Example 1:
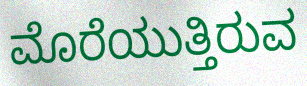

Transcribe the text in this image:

ಮೊರೆಯುತ್ತಿರುವ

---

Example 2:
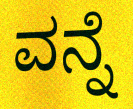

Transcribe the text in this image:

ವನ್ನೆ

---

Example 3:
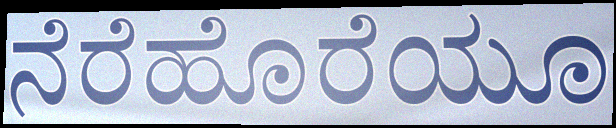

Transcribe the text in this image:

ನೆರೆಹೊರೆಯೂ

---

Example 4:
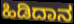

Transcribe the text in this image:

ಹಿಡಿದಾನ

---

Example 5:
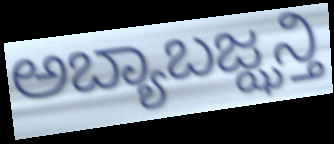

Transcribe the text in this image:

ಅಬ್ಯಾಬಜ್ಝನ್ತಿ